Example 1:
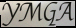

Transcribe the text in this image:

YMGA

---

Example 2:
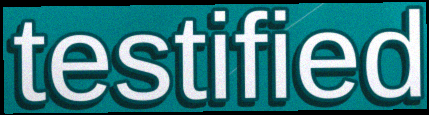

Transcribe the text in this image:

testified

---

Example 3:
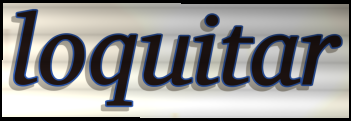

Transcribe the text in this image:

loquitar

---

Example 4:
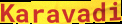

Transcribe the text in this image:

Karavadi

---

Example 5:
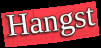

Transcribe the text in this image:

Hangst